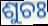
ଶୁଚଃ